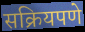
सक्रियपणे